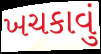
ખચકાવું